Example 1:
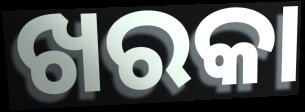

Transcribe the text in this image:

ଖରକା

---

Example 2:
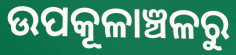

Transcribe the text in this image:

ଉପକୂଳାଞ୍ଚଳରୁ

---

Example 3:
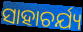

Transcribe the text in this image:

ସାହାଚର୍ଯ୍ୟ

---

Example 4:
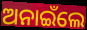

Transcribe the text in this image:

ଅନାଇଁଲେ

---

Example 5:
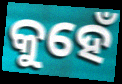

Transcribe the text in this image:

କୁହେଁ